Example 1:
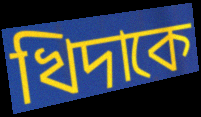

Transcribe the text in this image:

খিদাকে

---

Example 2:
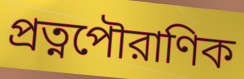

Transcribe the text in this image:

প্রত্নপৌরাণিক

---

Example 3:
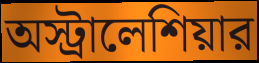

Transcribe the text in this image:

অস্ট্রালেশিয়ার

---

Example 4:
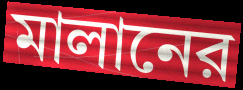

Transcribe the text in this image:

মালানের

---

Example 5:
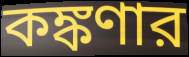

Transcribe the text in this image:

কঙ্কণার